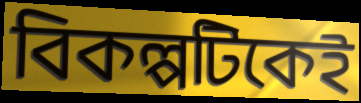
বিকল্পটিকেই